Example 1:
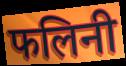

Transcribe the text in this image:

फलिनी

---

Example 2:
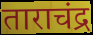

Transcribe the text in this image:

ताराचंद्र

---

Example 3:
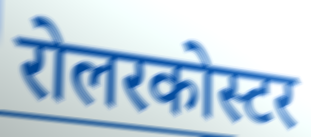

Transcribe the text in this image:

रोलरकोस्टर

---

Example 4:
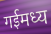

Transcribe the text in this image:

गईमध्य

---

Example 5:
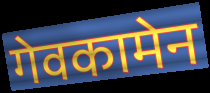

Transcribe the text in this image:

गेवकामेन